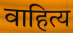
वाहित्य